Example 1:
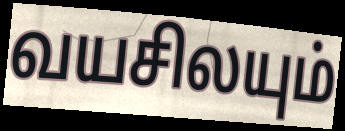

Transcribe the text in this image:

வயசிலயும்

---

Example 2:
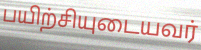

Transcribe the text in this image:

பயிற்சியுடையவர்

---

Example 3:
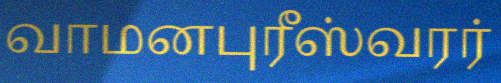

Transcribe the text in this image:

வாமனபுரீஸ்வரர்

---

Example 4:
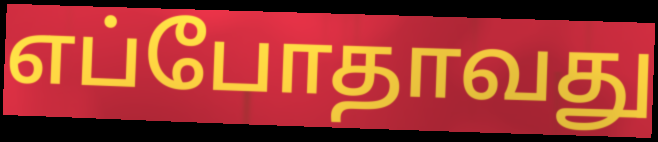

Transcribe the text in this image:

எப்போதாவது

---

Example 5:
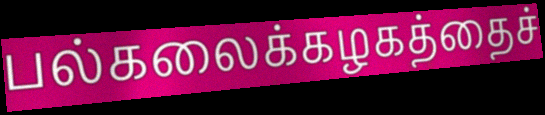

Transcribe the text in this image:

பல்கலைக்கழகத்தைச்